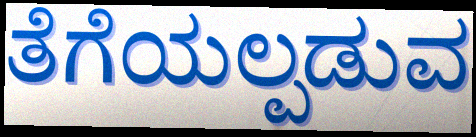
ತೆಗೆಯಲ್ಪಡುವ